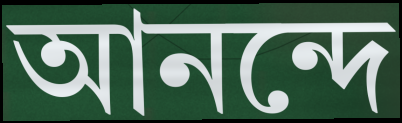
আনন্দে